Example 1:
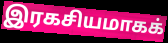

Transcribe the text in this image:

இரகசியமாகக்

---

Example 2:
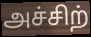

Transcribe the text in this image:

அச்சிற்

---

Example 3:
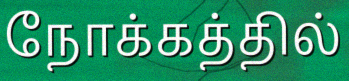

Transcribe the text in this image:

நோக்கத்தில்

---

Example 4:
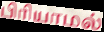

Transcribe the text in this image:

பிரியாமல்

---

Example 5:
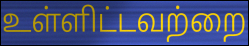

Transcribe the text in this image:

உள்ளிட்டவற்றை